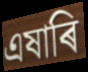
এষাৰি